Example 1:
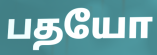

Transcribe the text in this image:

பதயோ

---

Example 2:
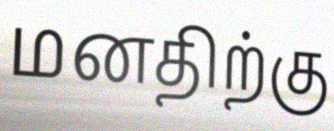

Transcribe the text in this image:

மனதிற்கு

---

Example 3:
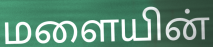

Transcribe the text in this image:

மளையின்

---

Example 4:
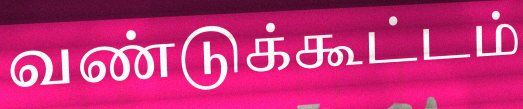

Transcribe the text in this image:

வண்டுக்கூட்டம்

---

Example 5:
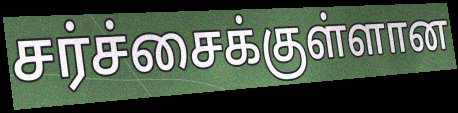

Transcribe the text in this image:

சர்ச்சைக்குள்ளான